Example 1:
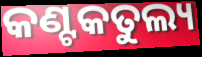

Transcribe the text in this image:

କଣ୍ଟକତୁଲ୍ୟ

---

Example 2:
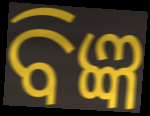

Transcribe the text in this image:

ବିଜ୍ଞ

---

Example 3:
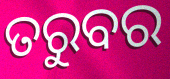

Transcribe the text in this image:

ତରୁବର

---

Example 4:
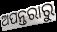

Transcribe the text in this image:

ଅପନ୍ତରାରୁ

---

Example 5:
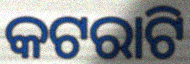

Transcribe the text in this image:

କଟରାଟି